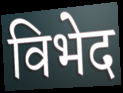
विभेद